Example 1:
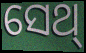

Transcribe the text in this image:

ସେଥ୍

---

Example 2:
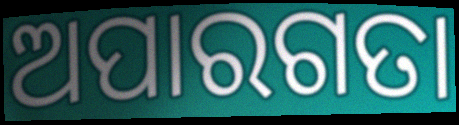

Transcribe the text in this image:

ଅପାରଗତା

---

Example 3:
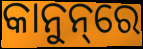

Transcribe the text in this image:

କାନୁନ୍‌ରେ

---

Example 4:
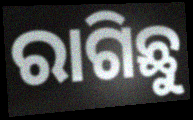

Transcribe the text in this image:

ରାଗିଛୁ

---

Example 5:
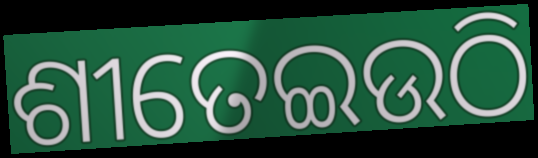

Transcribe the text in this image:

ଶୀତେଇଉଠି